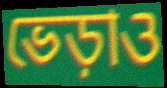
ভেড়াও